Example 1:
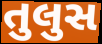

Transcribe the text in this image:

તુલુસ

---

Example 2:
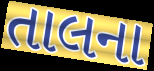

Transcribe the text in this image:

તાલના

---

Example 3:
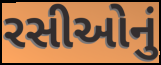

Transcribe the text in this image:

રસીઓનું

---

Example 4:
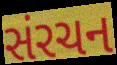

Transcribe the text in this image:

સંરચન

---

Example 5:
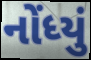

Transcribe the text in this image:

નોંધ્યું